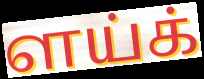
ளய்க்